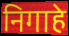
निगाहे